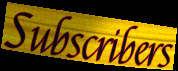
Subscribers